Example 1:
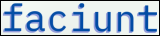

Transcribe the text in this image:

faciunt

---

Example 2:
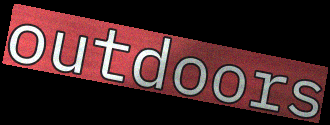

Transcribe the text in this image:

outdoors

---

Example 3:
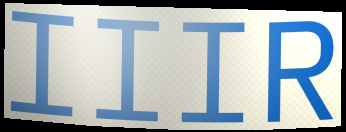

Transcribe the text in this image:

IIIR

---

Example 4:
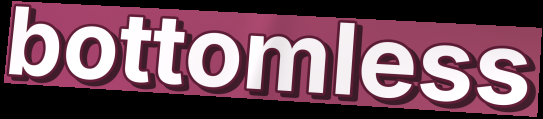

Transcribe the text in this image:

bottomless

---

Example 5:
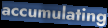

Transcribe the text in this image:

accumulating